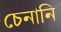
চেনানি